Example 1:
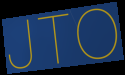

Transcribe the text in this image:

JTO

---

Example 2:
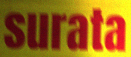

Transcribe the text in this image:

surata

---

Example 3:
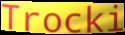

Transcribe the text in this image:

Trocki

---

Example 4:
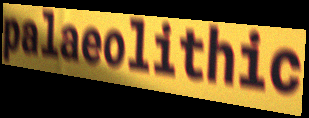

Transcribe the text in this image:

palaeolithic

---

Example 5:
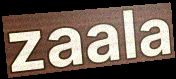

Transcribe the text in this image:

zaala